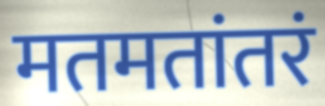
मतमतांतरं